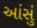
આંસું